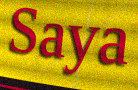
Saya